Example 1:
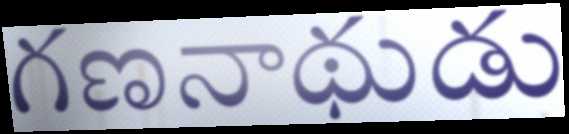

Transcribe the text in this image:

గణనాథుడు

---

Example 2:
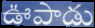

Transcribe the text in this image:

ఊపాడు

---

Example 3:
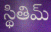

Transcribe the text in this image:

స్థితిమ్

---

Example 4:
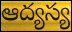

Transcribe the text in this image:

ఆద్యస్య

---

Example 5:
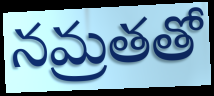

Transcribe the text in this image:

నమ్రతతో